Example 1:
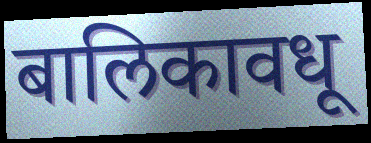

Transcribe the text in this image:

बालिकावधू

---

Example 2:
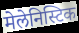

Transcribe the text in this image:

मेलेनिस्टिक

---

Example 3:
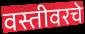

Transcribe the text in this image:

वस्तीवरचे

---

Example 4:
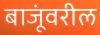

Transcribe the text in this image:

बाजूंवरील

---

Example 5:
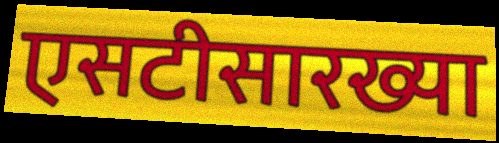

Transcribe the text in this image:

एसटीसारख्या